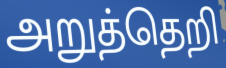
அறுத்தெறி